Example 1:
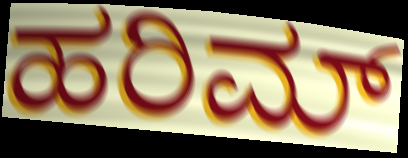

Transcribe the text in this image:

ಹರಿಮ್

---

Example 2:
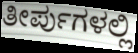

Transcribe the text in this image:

ತೀರ್ಪುಗಳಲ್ಲಿ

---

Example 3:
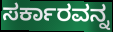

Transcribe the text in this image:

ಸರ್ಕಾರವನ್ನ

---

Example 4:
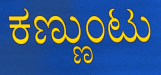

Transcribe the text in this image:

ಕಣ್ಣುಂಟು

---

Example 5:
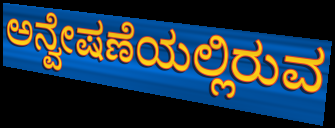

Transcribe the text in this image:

ಅನ್ವೇಷಣೆಯಲ್ಲಿರುವ